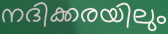
നദിക്കരയിലും